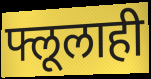
फ्लूलाही